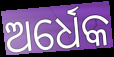
ଅର୍ଧେକ